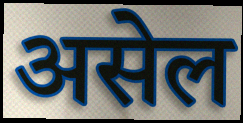
असेल